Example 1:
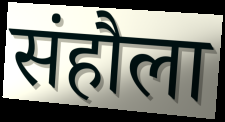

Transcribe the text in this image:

संहौला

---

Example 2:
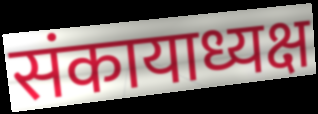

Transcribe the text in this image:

संकायाध्यक्ष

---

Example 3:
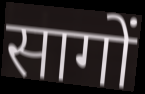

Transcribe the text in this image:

सागों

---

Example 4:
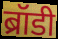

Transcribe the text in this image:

ब्रॉडी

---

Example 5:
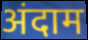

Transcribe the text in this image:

अंदाम